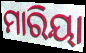
ମାରିୟା